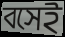
বসেই